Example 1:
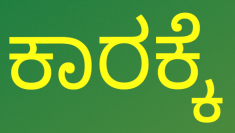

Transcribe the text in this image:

ಕಾರಕ್ಕೆ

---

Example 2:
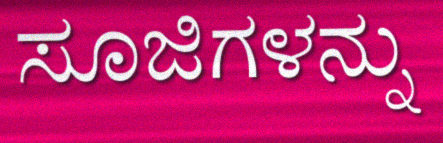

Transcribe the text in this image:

ಸೂಜಿಗಳನ್ನು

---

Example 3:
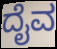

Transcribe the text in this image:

ದೈವ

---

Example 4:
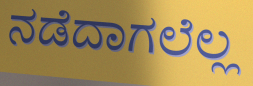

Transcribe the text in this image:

ನಡೆದಾಗಲೆಲ್ಲ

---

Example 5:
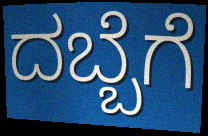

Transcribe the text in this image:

ದಬ್ಬೆಗೆ